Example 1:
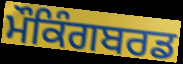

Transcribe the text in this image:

ਮੌਕਿੰਗਬਰਡ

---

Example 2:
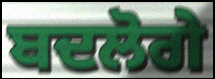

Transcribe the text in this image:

ਬਦਲੋਗੇ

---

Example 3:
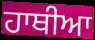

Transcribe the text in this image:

ਹਾਥੀਆ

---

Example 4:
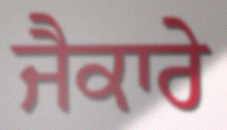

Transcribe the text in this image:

ਜੈਕਾਰੇ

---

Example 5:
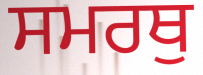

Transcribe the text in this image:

ਸਮਰਥੁ